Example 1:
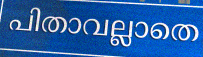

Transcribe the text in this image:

പിതാവല്ലാതെ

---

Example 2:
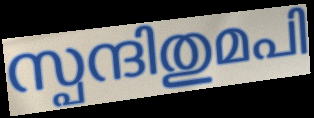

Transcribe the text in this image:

സ്പന്ദിതുമപി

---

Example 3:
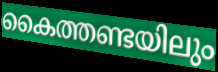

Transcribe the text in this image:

കൈത്തണ്ടയിലും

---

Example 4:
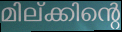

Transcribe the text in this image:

മില്ക്കിന്റെ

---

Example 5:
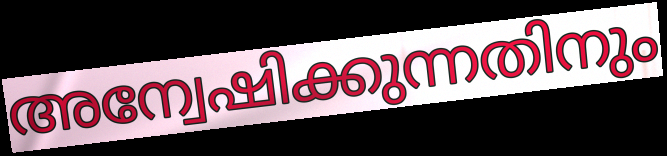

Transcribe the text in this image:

അന്വേഷിക്കുന്നതിനും